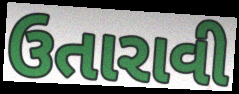
ઉતારાવી